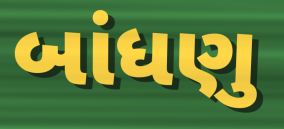
બાંધણુ